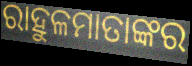
ରାହୁଳମାତାଙ୍କର